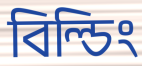
বিল্ডিং